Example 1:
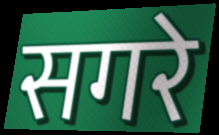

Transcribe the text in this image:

सगरे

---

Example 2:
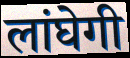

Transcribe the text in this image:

लांघेगी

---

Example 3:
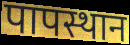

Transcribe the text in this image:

पापस्थान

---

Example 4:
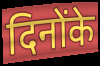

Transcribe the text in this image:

दिनोंके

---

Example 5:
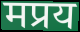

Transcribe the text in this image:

मप्रय